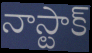
నాస్టాక్